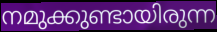
നമുക്കുണ്ടായിരുന്ന